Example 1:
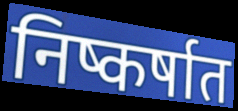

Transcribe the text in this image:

निष्कर्षात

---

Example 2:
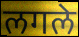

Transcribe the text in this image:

लगले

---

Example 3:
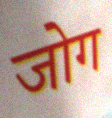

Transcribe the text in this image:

जोग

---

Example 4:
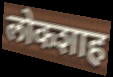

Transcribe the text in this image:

लोकशाह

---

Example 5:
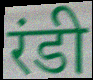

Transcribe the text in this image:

रंडी